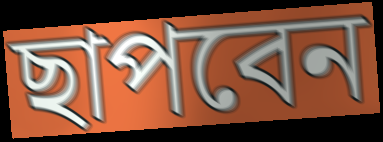
ছাপবেন